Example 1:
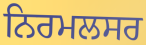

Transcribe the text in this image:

ਨਿਰਮਲਸਰ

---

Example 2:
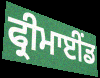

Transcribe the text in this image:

ਫ੍ਰੀਮਾਈਂਡ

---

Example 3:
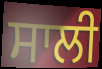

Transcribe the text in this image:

ਸਾਲੀ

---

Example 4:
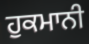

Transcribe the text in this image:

ਹੁਕਮਾਨੀ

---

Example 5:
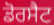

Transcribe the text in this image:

ਡੋਰਸੈਟ